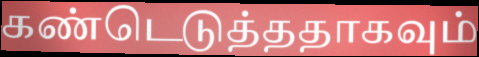
கண்டெடுத்ததாகவும்